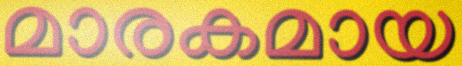
മാരകമായ